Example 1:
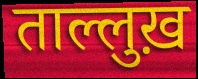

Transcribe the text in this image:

ताल्लुख़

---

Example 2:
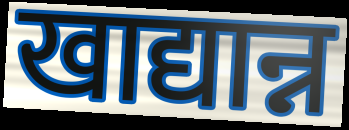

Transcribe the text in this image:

खाद्यान्न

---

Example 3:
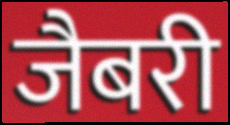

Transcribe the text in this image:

जैबरी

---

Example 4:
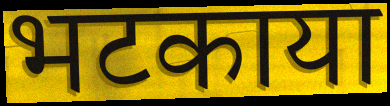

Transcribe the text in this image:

भटकाया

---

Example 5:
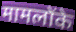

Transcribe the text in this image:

मामलोंके